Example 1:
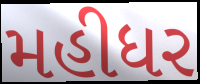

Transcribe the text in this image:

મહીધર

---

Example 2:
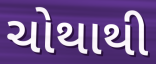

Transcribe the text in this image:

ચોથાથી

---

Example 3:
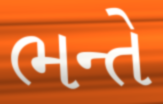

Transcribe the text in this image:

ભન્તે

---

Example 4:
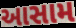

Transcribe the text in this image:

આસામ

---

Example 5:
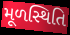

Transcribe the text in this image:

મૂળસ્થિતિ